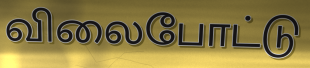
விலைபோட்டு